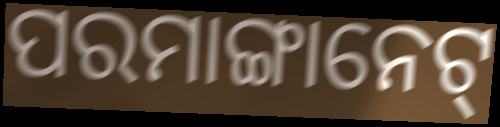
ପରମାଙ୍ଗାନେଟ୍